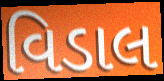
વિડાલ